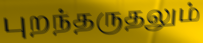
புறந்தருதலும்